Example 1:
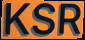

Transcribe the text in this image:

KSR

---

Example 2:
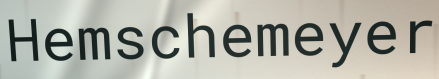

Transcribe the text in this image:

Hemschemeyer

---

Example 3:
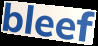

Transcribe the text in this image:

bleef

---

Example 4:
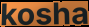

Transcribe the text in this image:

kosha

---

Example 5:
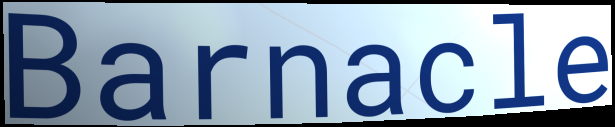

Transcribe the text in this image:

Barnacle